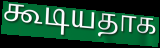
கூடியதாக